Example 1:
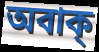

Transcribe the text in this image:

অবাক্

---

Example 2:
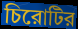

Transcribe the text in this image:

চিরোটির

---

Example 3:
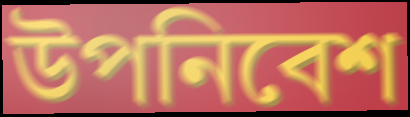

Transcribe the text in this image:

উপনিবেশ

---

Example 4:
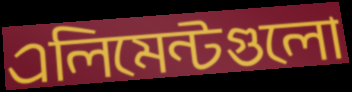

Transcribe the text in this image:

এলিমেন্টগুলো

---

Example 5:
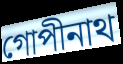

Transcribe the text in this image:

গোপীনাথ